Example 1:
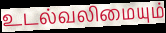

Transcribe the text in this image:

உடல்வலிமையும்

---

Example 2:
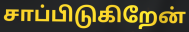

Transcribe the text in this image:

சாப்பிடுகிறேன்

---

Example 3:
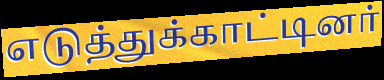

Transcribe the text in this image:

எடுத்துக்காட்டினர்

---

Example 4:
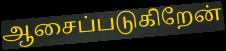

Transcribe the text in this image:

ஆசைப்படுகிறேன்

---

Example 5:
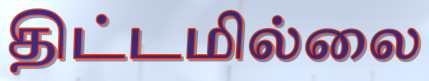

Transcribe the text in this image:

திட்டமில்லை